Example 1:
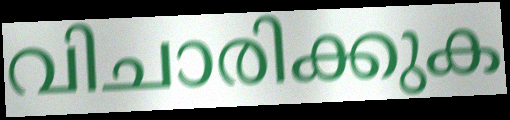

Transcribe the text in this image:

വിചാരിക്കുക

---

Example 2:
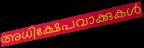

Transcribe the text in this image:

അധിക്ഷേപവാക്കുകൾ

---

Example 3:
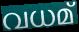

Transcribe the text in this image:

വധമ്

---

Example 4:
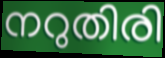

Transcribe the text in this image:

നറുതിരി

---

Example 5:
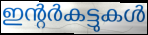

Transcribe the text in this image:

ഇന്റർകട്ടുകൾ